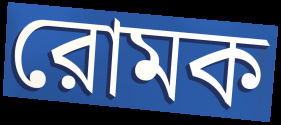
রোমক